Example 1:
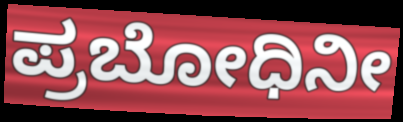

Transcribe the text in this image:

ಪ್ರಬೋಧಿನೀ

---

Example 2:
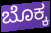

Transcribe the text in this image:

ಬೊಕ್ಕ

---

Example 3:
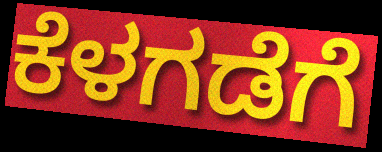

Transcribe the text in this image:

ಕೆಳಗಡೆಗೆ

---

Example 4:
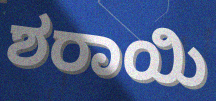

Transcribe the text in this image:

ಶರಾಯಿ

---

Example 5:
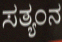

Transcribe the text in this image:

ಸತ್ಯಂನ